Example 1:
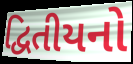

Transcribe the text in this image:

દ્વિતીયનો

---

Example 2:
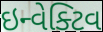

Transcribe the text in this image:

ઇન્વેક્ટિવ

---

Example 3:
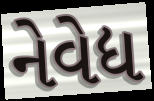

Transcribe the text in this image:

નેવેદ્ય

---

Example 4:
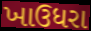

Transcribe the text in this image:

ખાઉધરા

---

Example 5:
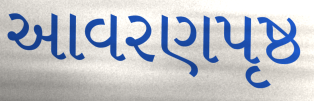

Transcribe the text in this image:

આવરણપૃષ્ઠ